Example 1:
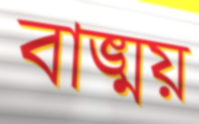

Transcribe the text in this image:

বাঙ্ময়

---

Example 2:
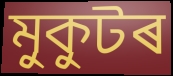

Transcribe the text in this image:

মুকুটৰ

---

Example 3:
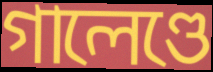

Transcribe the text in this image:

গালেণ্ডে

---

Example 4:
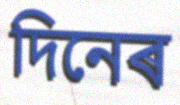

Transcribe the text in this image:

দিনেৰ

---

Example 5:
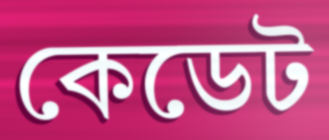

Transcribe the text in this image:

কেডেট